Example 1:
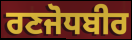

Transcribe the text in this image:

ਰਣਜੋਧਬੀਰ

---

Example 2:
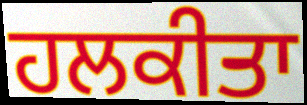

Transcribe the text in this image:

ਹਲਕੀਤਾ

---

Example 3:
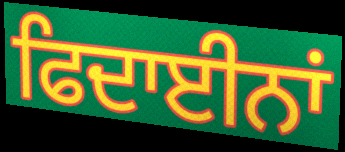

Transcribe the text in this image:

ਫਿਦਾਈਨਾਂ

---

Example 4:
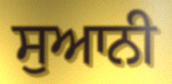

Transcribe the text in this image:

ਸੁਆਨੀ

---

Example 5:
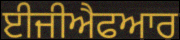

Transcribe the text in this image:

ਈਜੀਐਫਆਰ